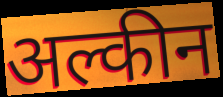
अल्कीन